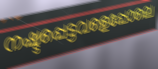
നഷ്ടപ്പെട്ടവളെപ്പോലെ